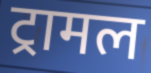
ट्रामल